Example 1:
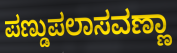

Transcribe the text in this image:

ಪಣ್ಡುಪಲಾಸವಣ್ಣಾ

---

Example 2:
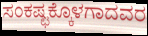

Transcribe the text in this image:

ಸಂಕಷ್ಟಕ್ಕೊಳಗಾದವರ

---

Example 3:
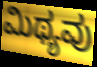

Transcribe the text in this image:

ಮಿಥ್ಯವು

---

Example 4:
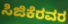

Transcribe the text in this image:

ಸಿಜಿಕೆರವರ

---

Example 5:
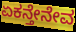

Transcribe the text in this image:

ಏಕನ್ತೇನೇವ